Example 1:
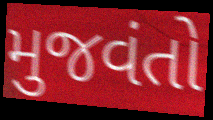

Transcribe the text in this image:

મુજવંતો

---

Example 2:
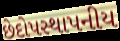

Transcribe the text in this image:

છેદોપસ્થાપનીય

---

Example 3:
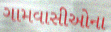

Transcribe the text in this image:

ગામવાસીઓના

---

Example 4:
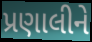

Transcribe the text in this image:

પ્રણાલીને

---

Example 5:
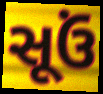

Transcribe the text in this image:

સૂઉં